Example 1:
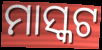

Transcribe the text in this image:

ମାସ୍କଟ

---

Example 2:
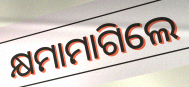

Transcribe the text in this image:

କ୍ଷମାମାଗିଲେ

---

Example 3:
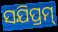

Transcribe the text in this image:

ସଯିପ୍ରମ୍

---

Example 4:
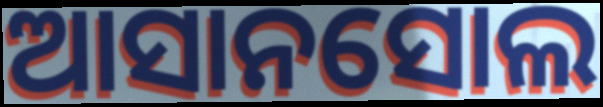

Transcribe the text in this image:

ଆସାନସୋଲ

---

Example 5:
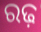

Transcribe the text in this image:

ରଢ଼